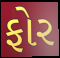
ફોર